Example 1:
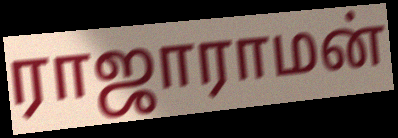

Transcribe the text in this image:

ராஜாராமன்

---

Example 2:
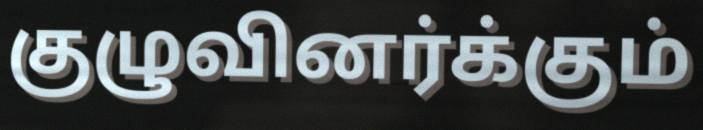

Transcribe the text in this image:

குழுவினர்க்கும்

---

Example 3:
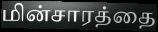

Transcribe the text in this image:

மின்சாரத்தை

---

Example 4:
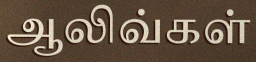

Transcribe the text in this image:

ஆலிவ்கள்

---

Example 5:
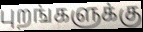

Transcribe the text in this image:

புறங்களுக்கு